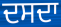
ਦਸਦਾ